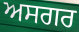
ਅਸਗਰ